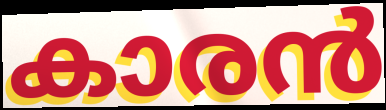
കാരൻ